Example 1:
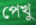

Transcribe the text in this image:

পেখু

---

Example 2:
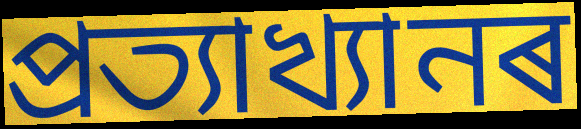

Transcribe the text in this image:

প্ৰত্যাখ্যানৰ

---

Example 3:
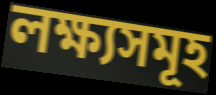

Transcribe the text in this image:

লক্ষ্যসমূহ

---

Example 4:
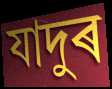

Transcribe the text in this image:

যাদুৰ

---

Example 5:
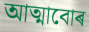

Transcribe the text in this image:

আত্মাবোৰ